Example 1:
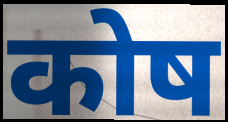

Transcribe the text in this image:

कोष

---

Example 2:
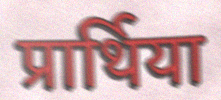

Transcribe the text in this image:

प्रार्थिया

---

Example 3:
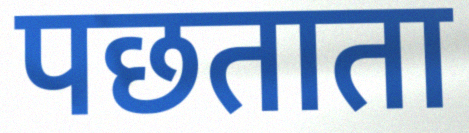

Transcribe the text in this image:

पछताता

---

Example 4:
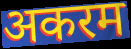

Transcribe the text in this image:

अकरम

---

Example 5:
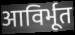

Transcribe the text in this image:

आविर्भूत